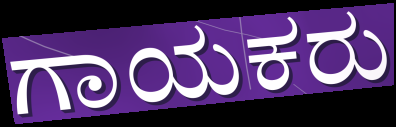
ಗಾಯಕರು